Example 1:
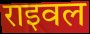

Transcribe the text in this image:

राइवल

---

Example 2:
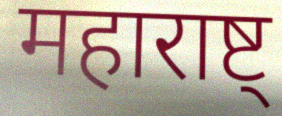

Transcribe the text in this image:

महाराष्ट्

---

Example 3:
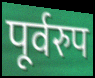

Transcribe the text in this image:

पूर्वरुप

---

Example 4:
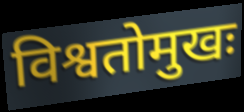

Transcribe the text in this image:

विश्वतोमुखः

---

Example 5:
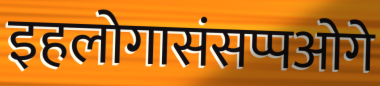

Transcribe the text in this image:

इहलोगासंसप्पओगे